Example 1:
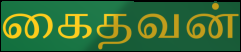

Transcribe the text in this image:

கைதவன்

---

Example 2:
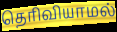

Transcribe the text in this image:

தெரிவியாமல்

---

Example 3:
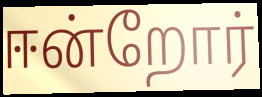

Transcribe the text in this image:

ஈன்றோர்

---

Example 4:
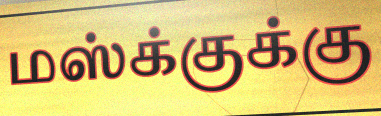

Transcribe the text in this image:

மஸ்க்குக்கு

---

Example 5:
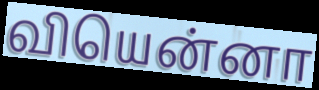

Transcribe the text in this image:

வியென்னா